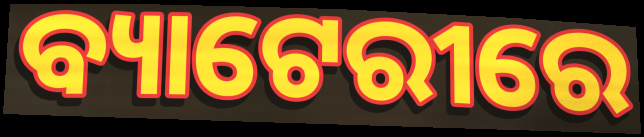
ବ୍ୟାଟେରୀରେ